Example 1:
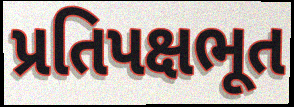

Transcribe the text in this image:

પ્રતિપક્ષભૂત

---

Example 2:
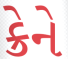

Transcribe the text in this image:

ક્રેને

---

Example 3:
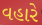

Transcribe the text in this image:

વહારે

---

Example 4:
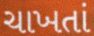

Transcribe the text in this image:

ચાખતાં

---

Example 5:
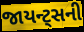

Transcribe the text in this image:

જાયન્ટ્સની